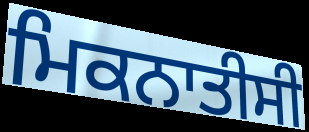
ਮਿਕਨਾਤੀਸੀ